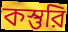
কস্তুরি